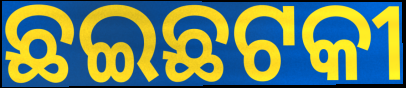
ଛଇଛଟକୀ